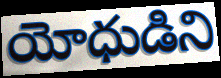
యోధుడిని